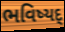
ભવિષ્યદ્